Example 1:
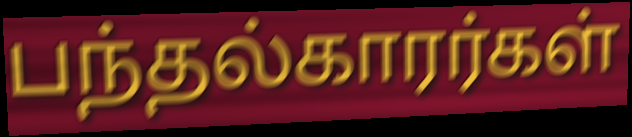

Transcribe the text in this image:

பந்தல்காரர்கள்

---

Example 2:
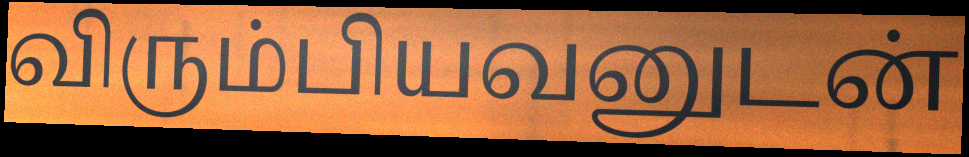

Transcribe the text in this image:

விரும்பியவனுடன்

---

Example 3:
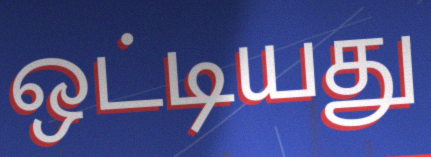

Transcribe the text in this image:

ஒட்டியது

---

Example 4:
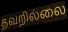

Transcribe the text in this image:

தவறில்லை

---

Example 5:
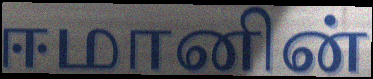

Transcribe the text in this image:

ஈமானின்